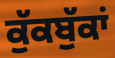
ਕੁੱਕਬੁੱਕਾਂ